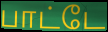
பாட்டே